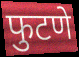
फुटणे